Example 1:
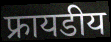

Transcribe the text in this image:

फ्रायडीय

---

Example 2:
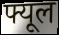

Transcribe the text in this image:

फ्यूल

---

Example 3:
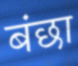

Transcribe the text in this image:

बंछा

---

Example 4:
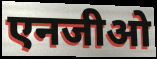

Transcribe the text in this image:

एनजीओ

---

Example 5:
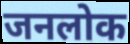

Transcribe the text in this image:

जनलोक